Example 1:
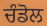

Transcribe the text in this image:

ਚੰਡੋਲ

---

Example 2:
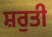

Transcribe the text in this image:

ਸ਼ਰੁਤੀ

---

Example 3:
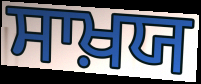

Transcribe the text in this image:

ਸਾਖ਼ਯ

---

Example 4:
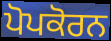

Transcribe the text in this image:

ਪੋਪਕੋਰਨ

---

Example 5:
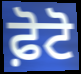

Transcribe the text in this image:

ਫ਼ੋਟੋ